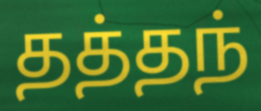
தத்தந்